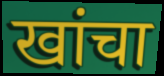
खांचा